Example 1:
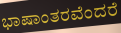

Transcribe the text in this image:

ಭಾಷಾಂತರವೆಂದರೆ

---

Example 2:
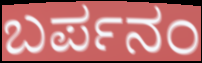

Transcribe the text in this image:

ಬರ್ಪನಂ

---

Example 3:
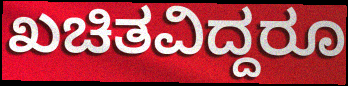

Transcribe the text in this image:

ಖಚಿತವಿದ್ದರೂ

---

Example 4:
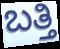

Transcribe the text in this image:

ಬತ್ತಿ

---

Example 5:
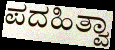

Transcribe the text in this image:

ಪದಹಿತ್ವಾ